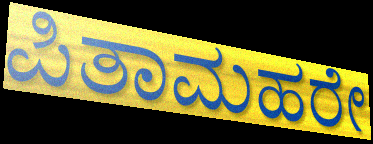
ಪಿತಾಮಹರೇ